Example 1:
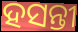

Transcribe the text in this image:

ହସନ୍ତୀ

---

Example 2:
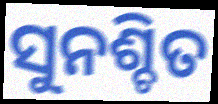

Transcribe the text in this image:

ସୁନଶ୍ଚିତ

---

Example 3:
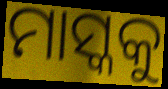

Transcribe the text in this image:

ମାସ୍କକୁ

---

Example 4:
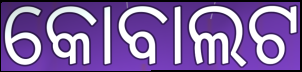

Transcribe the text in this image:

କୋବାଲଟ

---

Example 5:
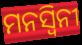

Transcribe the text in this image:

ମନସ୍ୱିନୀ